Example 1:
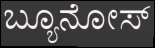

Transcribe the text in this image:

ಬ್ಯೂನೋಸ್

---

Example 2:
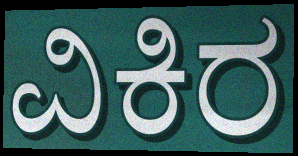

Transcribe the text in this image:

ವಿಕಿರ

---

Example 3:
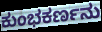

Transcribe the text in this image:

ಕುಂಭಕರ್ಣನು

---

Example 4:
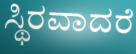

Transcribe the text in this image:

ಸ್ಥಿರವಾದರೆ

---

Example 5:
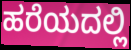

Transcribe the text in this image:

ಹರೆಯದಲ್ಲಿ